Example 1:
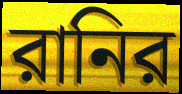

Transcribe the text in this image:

রানির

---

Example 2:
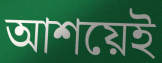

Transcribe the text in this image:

আশয়েই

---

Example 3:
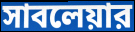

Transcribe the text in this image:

সাবলেয়ার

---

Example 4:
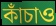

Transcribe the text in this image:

কাঁচাও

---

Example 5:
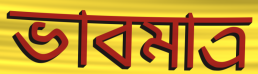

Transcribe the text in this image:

ভাবমাত্র